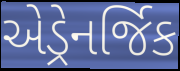
એડ્રેનર્જિક